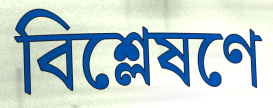
বিশ্লেষণে